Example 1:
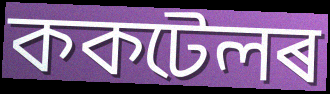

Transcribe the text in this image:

ককটেলৰ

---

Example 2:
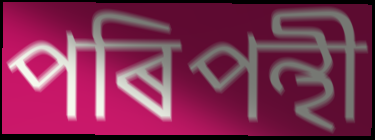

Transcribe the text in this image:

পৰিপন্থী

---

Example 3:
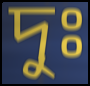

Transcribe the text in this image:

দুঃ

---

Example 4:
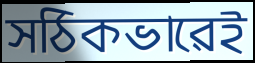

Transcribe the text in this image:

সঠিকভাৱেই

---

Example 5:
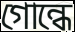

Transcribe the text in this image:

গোন্ধে